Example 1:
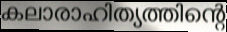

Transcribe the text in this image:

കലാരാഹിത്യത്തിന്റെ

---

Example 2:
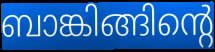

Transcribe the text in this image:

ബാങ്കിങ്ങിന്റെ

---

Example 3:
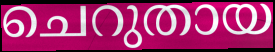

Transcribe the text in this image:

ചെറുതായ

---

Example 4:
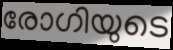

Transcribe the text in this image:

രോഗിയുടെ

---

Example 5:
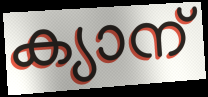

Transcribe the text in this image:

ക്യാന്